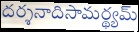
దర్శనాదిసామర్థ్యమ్